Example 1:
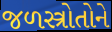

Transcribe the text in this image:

જળસ્ત્રોતોને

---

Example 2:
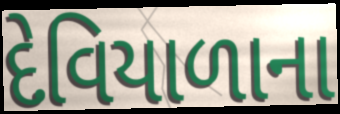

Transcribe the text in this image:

દેવિયાળાના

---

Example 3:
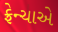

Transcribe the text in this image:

ફ્રેન્ચાએ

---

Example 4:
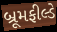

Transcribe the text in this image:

બ્રૂમફીલ્ડે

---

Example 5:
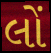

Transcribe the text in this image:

લોં